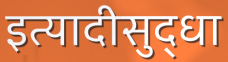
इत्यादीसुद्धा